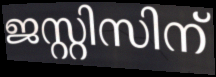
ജസ്റ്റിസിന്